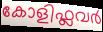
കോളിഫ്ലവർ